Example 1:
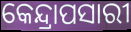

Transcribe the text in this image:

କେନ୍ଦ୍ରାପସାରୀ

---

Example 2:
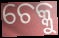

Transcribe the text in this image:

ଚେକ୍କୁ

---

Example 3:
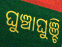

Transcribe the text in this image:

ଘୁଞ୍ଚାଘୁଞ୍ଚି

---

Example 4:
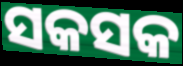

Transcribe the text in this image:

ସକସକ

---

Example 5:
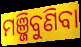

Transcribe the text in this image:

ମଞ୍ଜିବୁଣିବା